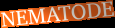
NEMATODE